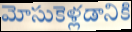
మోసుకెళ్లడానికి